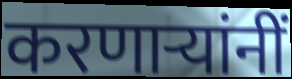
करणार्‍यांनीं